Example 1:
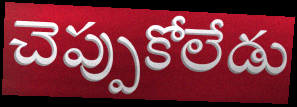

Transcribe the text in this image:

చెప్పుకోలేడు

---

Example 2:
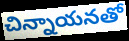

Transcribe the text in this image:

చిన్నాయనతో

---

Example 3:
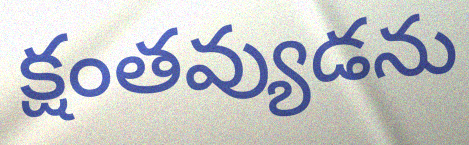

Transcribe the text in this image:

క్షంతవ్యుడను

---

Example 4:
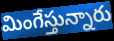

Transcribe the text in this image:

మింగేస్తున్నారు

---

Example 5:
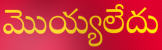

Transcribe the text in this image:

మొయ్యలేదు